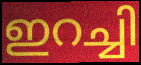
ഇറച്ചി